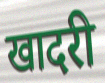
खादरी